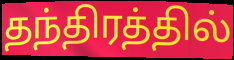
தந்திரத்தில்